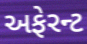
અફેરન્ટ